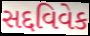
સદ્દવિવેક